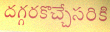
దగ్గరకొచ్చేసరికి